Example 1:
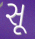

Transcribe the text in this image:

સૂ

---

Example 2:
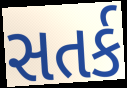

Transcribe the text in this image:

સતર્ક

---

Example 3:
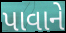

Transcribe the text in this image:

પાવાને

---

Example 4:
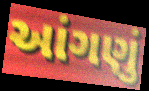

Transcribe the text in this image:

આંગણું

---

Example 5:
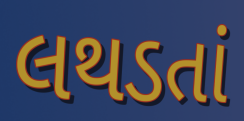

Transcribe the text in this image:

લથડતાં